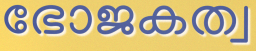
ഭോജകത്വ